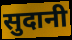
सुदानी